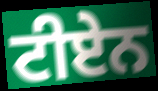
ਟੀਏਨ